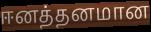
ஈனத்தனமான